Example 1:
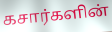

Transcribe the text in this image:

கசார்களின்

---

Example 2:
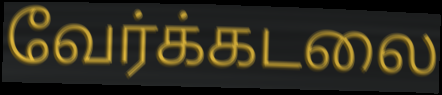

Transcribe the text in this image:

வேர்க்கடலை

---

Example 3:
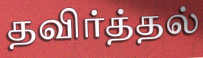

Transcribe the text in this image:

தவிர்த்தல்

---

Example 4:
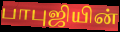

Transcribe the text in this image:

பாபுஜியின்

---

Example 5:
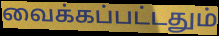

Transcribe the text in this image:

வைக்கப்பட்டதும்